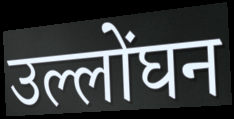
उल्लोंघन